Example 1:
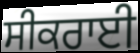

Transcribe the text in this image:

ਸੀਕਰਾਈ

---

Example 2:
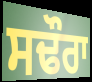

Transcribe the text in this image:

ਸਢੌਰਾ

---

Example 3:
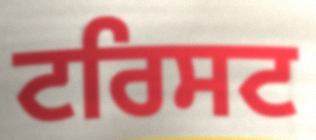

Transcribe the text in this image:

ਟਰਿਸਟ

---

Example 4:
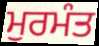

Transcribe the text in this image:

ਮੁਰਮੰਤ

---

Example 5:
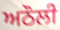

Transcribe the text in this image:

ਅਠੌਲੀ